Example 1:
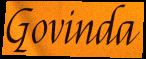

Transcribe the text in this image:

Govinda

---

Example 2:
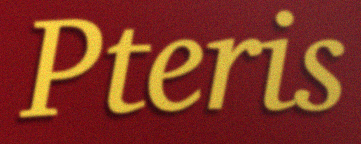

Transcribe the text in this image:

Pteris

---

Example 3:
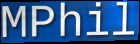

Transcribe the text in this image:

MPhil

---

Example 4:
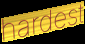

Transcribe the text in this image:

hardest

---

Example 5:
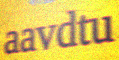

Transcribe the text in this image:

aavdtu